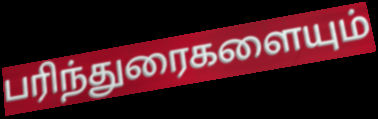
பரிந்துரைகளையும்